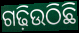
ଗଢ଼ିଉଠିଛି